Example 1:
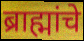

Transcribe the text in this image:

ब्राह्मांचे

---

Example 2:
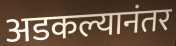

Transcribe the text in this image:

अडकल्यानंतर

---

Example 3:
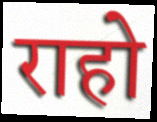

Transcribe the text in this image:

राहो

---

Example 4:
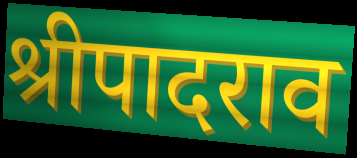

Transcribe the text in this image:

श्रीपादराव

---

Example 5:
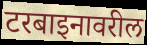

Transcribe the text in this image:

टरबाइनावरील